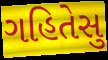
ગહિતેસુ